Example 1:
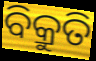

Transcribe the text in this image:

ବିକ୍ରୁତି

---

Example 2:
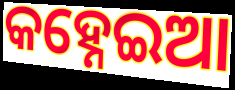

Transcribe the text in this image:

କହ୍ନେଇଆ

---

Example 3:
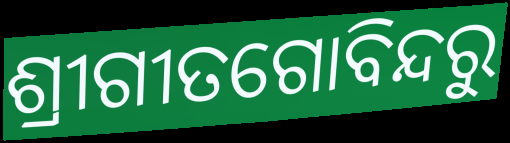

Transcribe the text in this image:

ଶ୍ରୀଗୀତଗୋବିନ୍ଦରୁ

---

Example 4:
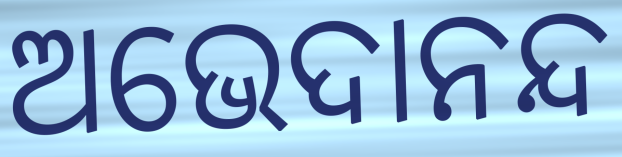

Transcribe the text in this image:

ଅଭେଦାନନ୍ଦ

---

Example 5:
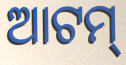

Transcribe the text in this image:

ଆଟମ୍